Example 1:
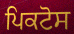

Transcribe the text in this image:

ਪਿਕਟੋਸ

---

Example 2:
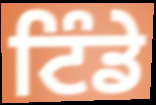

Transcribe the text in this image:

ਟਿੰਡੇ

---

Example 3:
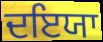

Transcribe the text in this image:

ਦਇਯਾ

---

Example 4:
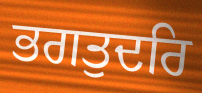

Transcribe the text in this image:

ਭਗਤੁਦਰਿ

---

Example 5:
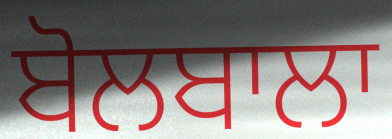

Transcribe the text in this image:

ਬੋਲਬਾਲਾ